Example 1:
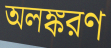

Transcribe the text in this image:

অলঙ্করণ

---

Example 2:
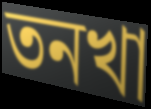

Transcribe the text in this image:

তনখা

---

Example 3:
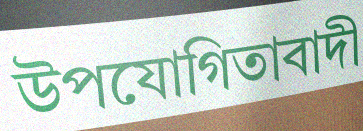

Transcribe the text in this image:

উপযোগিতাবাদী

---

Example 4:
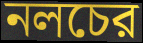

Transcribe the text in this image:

নলচের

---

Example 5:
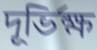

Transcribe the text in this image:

দূর্ভিক্ষ